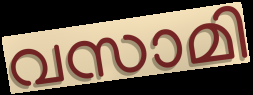
വസാമി